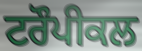
ਟਰੌਪੀਕਲ